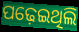
ପଢ଼େଇଥିଲି